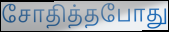
சோதித்தபோது